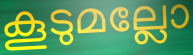
കൂടുമല്ലോ